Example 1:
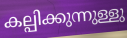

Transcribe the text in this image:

കല്പിക്കുന്നുള്ളു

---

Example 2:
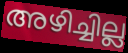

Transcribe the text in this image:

അഴിച്ചില്ല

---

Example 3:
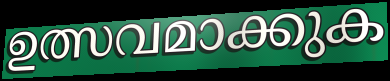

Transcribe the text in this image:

ഉത്സവമാക്കുക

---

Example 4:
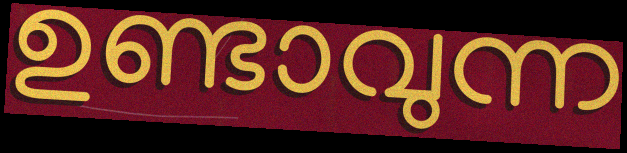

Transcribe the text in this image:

ഉണ്ടാവുന്ന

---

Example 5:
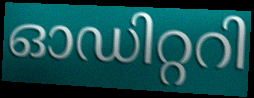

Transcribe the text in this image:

ഓഡിറ്ററി